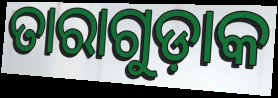
ତାରାଗୁଡ଼ାକ